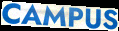
CAMPUS